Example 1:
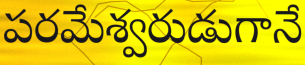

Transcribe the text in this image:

పరమేశ్వరుడుగానే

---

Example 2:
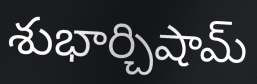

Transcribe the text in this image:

శుభార్చిషామ్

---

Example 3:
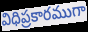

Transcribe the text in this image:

విధిప్రకారముగా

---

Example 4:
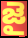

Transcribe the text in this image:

జై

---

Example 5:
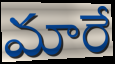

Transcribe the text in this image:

మారే